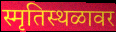
स्मृतिस्थळावर